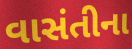
વાસંતીના